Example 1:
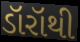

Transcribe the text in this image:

ડૉરૉથી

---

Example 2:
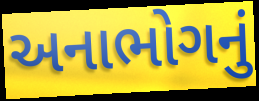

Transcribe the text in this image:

અનાભોગનું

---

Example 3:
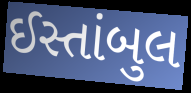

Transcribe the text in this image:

ઈસ્તાંબુલ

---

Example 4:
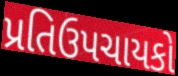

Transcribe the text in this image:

પ્રતિઉપચાયકો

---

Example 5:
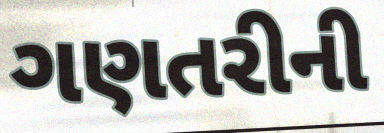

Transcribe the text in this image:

ગણતરીની